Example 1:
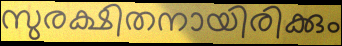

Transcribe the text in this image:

സുരക്ഷിതനായിരിക്കും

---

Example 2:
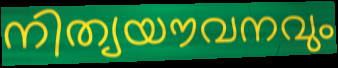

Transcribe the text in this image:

നിത്യയൗവനവും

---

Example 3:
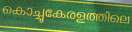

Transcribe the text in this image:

കൊച്ചുകേരളത്തിലെ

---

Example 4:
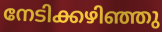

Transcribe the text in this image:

നേടിക്കഴിഞ്ഞു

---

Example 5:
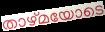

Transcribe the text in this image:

താഴ്മയോടെ